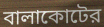
বালাকোটের